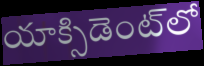
యాక్సిడెంట్‌లో